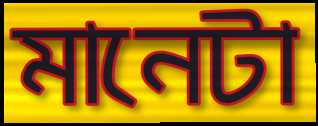
মানেটা